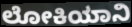
ಲೋಕಿಯಾನಿ